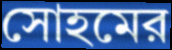
সোহমের